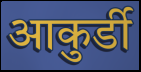
आकुर्डी